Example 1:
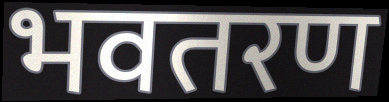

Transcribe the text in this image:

भवतरण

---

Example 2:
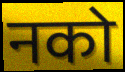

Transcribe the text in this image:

नको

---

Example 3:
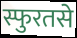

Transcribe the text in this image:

स्फुरतसे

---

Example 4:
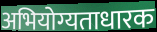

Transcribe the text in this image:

अभियोग्यताधारक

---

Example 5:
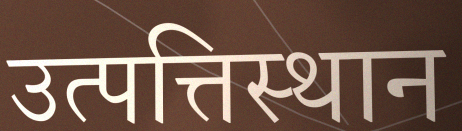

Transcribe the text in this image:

उत्पत्तिस्थान